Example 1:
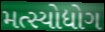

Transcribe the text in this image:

મત્સ્યોદ્યોગ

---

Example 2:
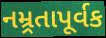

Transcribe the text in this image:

નમ્ર્રતાપૂર્વક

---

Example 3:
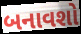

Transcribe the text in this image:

બનાવશો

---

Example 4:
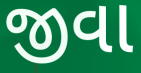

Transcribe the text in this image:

જીવા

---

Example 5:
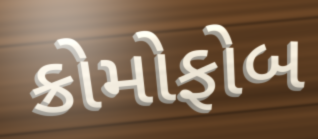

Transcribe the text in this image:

ક્રોમોફોબ